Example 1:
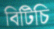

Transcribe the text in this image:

বিটিচি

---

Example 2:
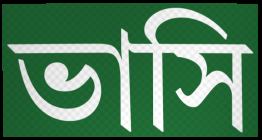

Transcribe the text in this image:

ভাসি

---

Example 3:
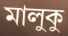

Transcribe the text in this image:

মালুকু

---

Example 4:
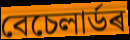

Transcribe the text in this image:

বেচেলাৰ্ডৰ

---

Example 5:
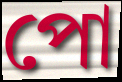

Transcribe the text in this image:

পো